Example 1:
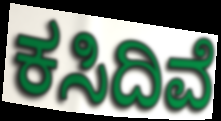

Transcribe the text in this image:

ಕಸಿದಿವೆ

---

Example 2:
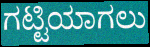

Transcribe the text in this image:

ಗಟ್ಟಿಯಾಗಲು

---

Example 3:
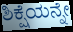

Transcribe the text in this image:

ಶಿಕ್ಷೆಯನ್ನೇ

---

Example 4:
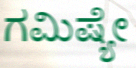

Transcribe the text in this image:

ಗಮಿಷ್ಯೇ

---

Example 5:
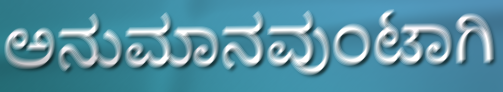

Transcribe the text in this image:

ಅನುಮಾನವುಂಟಾಗಿ